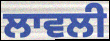
ਲਾਵਲੀ